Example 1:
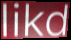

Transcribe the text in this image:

likd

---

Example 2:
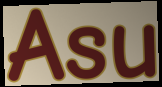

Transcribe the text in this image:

Asu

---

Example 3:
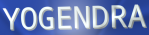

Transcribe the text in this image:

YOGENDRA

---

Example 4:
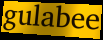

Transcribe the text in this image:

gulabee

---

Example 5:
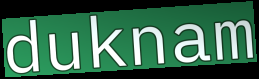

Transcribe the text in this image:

duknam